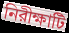
নিরীক্ষাটি